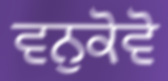
ਵਨੁਕੋਵੋ